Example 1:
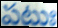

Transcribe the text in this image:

పటుః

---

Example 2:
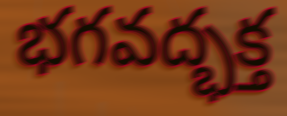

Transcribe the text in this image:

భగవద్భక్త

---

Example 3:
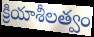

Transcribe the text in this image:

క్రియాశీలత్వం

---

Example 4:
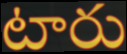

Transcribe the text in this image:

టారు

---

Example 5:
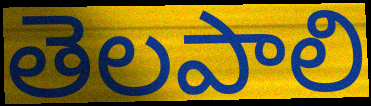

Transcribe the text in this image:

తెలపాలి